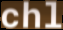
chl